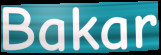
Bakar